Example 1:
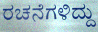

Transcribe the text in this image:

ರಚನೆಗಳಿದ್ದು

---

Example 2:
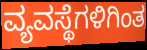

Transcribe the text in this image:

ವ್ಯವಸ್ಥೆಗಳಿಗಿಂತ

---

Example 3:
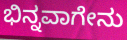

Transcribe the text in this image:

ಭಿನ್ನವಾಗೇನು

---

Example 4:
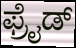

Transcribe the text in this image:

ಫ್ರೈಡ್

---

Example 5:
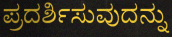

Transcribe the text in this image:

ಪ್ರದರ್ಶಿಸುವುದನ್ನು